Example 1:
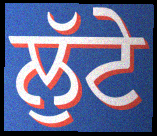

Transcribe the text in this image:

ਲੁੱਟੇ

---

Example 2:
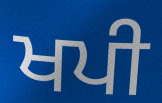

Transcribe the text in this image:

ਖਪੀ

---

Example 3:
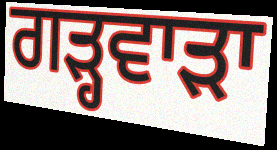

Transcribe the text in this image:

ਗੜ੍ਹਵਾੜਾ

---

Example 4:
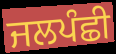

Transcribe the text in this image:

ਜਲਪੰਛੀ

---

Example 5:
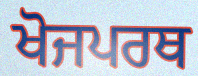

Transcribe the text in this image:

ਖੋਜਪਰਥ